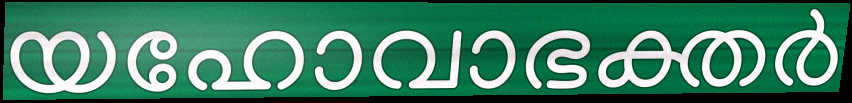
യഹോവാഭക്തർ